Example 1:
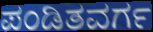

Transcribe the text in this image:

ಪಂಡಿತವರ್ಗ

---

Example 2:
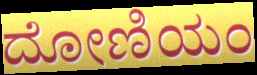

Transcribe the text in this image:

ದೋಣಿಯಂ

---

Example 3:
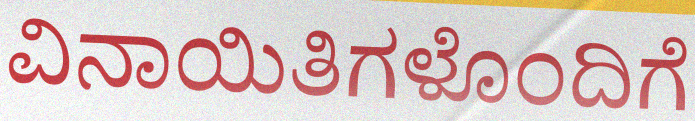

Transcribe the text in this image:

ವಿನಾಯಿತಿಗಳೊಂದಿಗೆ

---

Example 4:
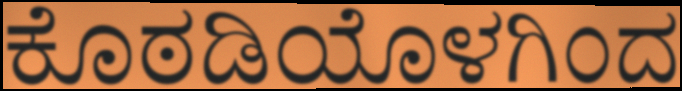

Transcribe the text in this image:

ಕೊಠಡಿಯೊಳಗಿಂದ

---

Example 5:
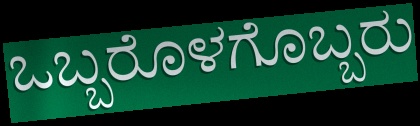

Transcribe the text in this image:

ಒಬ್ಬರೊಳಗೊಬ್ಬರು